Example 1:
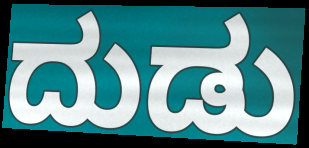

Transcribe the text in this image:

ದುಡು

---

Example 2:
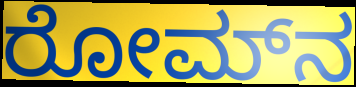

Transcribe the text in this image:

ರೋಮ್‍ನ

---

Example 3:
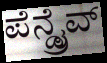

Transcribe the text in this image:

ಪೆನ್ಡ್ರೈವ್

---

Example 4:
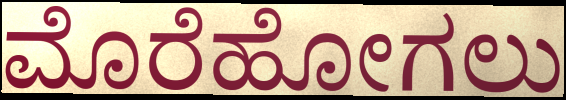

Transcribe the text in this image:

ಮೊರೆಹೋಗಲು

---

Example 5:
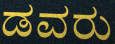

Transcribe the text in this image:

ಡವರು